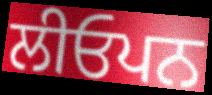
ਲੀਓਪਨ